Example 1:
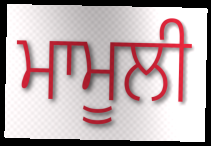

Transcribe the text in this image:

ਮਾਮੂਲੀ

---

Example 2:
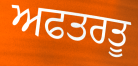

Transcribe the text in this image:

ਅਫਤਰਤੂ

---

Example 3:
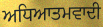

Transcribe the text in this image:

ਅਧਿਆਤਮਵਾਦੀ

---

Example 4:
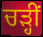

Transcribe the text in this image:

ਚੜ੍ਹੀਂ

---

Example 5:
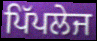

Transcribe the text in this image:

ਪਿੱਪਲੇਜ